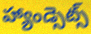
హ్యాండ్సెట్స్